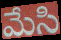
మేసి